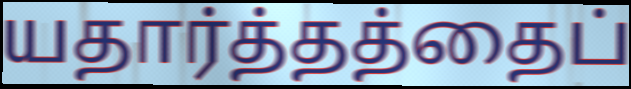
யதார்த்தத்தைப்